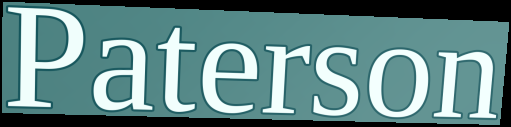
Paterson